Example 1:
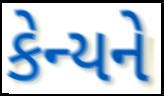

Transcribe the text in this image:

કેન્યને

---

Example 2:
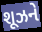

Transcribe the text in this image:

શૂઝને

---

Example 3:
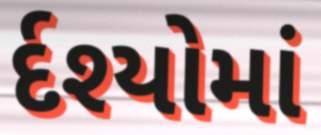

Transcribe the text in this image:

ર્દશ્યોમાં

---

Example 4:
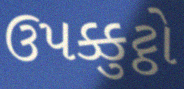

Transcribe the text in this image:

ઉપક્કુટ્ઠો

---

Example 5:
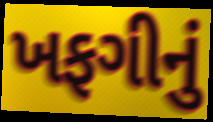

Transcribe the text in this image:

ખફગીનું